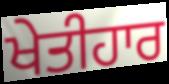
ਖੇਤੀਹਾਰ